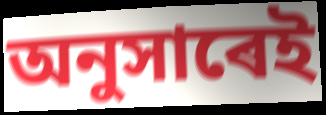
অনুসাৰেই